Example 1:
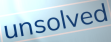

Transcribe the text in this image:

unsolved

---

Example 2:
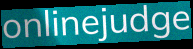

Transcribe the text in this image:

onlinejudge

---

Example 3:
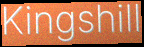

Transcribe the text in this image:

Kingshill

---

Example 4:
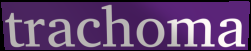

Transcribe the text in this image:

trachoma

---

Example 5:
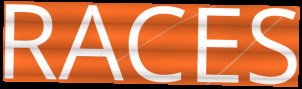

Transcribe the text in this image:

RACES